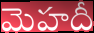
మెహదీ